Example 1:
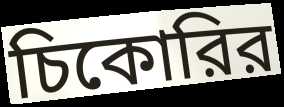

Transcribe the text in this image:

চিকোরির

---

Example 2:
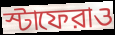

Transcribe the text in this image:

স্টাফেরাও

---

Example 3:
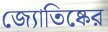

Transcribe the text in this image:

জ্যোতিষ্কের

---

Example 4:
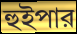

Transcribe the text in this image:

হুইপার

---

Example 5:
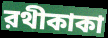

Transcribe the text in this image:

রথীকাকা